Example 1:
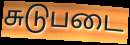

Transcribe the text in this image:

சுடுபடை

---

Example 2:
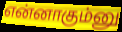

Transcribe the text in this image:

என்னாகும்னு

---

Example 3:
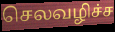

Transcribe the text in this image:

செலவழிச்ச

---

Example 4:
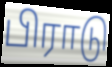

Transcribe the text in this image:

பிராடு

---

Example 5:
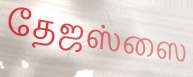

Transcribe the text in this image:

தேஜஸ்ஸை